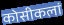
कोसीकलां